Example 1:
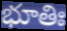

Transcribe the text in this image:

భూతిః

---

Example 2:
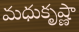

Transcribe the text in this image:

మధుకృష్ణా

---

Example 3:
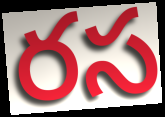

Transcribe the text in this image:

రస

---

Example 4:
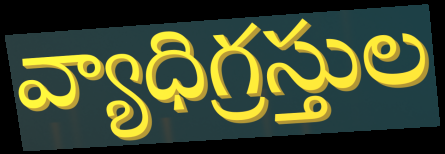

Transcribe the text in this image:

వ్యాధిగ్రస్తుల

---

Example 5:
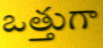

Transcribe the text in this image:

ఒత్తుగా